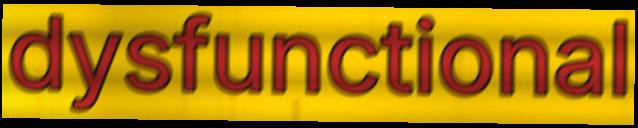
dysfunctional